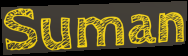
Suman